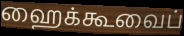
ஹைக்கூவைப்